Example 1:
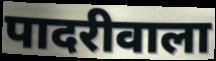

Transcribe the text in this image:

पादरीवाला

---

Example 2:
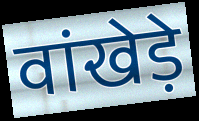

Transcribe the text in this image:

वांखेड़े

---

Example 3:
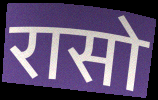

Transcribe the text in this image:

रासो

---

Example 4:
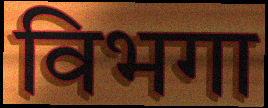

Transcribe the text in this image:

विभगा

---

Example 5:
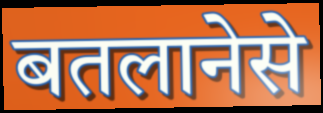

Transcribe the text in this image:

बतलानेसे